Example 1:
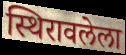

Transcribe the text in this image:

स्थिरावलेला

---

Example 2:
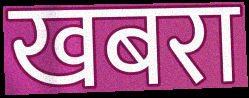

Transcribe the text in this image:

खबरा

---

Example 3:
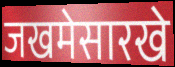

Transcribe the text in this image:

जखमेसारखे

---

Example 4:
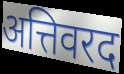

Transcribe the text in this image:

अत्तिवरद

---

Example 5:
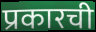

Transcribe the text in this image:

प्रकारची